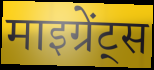
माइग्रेंट्स